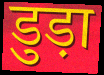
डुड़ा